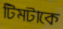
টিমটাকে